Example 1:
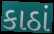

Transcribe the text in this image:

કાઠાં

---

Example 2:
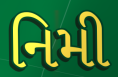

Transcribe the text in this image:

નિમી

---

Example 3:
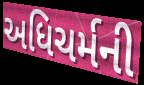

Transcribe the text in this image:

અધિચર્મની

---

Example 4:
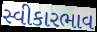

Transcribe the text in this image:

સ્વીકારભાવ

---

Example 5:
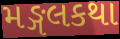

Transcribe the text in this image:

મઙ્ગલકથા